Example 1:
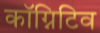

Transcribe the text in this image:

कॉग्निटिव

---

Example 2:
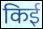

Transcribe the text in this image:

किई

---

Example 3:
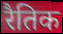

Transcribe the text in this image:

रैतिक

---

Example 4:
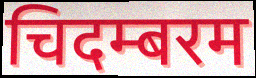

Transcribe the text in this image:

चिदम्बरम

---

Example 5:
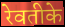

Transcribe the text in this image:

रेवतीके